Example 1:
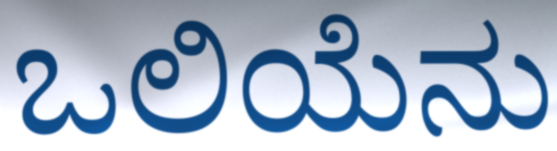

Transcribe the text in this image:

ಒಲಿಯೆನು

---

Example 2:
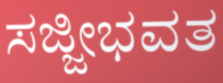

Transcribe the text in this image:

ಸಜ್ಜೀಭವತ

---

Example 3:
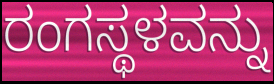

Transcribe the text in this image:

ರಂಗಸ್ಥಳವನ್ನು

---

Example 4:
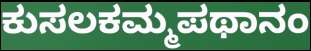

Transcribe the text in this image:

ಕುಸಲಕಮ್ಮಪಥಾನಂ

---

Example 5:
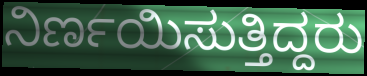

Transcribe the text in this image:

ನಿರ್ಣಯಿಸುತ್ತಿದ್ದರು